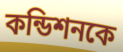
কন্ডিশনকে